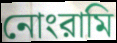
নোংরামি